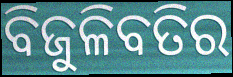
ବିଜୁଳିବତିର